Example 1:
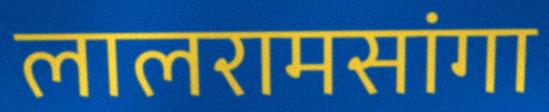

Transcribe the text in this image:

लालरामसांगा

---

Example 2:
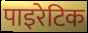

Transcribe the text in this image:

पाइरेटिक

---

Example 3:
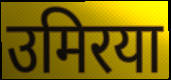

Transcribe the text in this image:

उमिरया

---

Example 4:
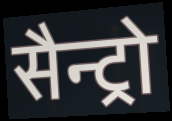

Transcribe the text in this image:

सैन्ट्रो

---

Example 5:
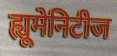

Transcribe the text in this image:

ह्यूमेनिटीज